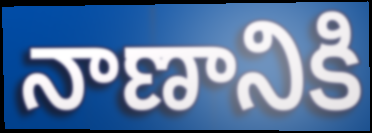
నాణానికి